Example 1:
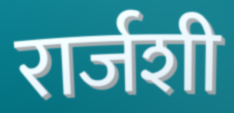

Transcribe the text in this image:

रार्जशी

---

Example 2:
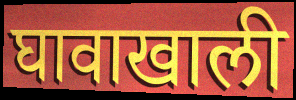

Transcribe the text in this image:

घावाखाली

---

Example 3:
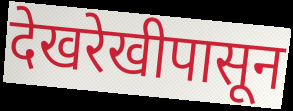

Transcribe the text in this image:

देखरेखीपासून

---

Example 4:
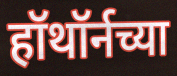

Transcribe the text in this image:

हॉथॉर्नच्या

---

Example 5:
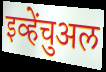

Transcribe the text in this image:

इव्हेंचुअल